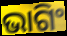
ଭାଗିଂ